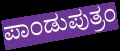
ಪಾಂಡುಪುತ್ರಂ